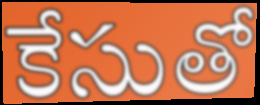
కేసుతో